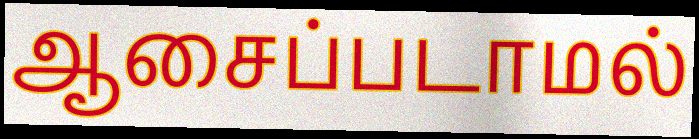
ஆசைப்படாமல்